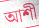
আশী